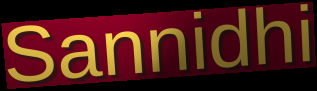
Sannidhi